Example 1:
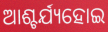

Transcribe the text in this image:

ଆଶ୍ଚର୍ଯ୍ୟହୋଇ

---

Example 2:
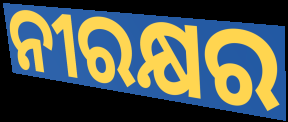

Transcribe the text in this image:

ନୀରକ୍ଷର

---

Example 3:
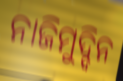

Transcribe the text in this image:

ନାଜିମୁଦ୍ଦିନ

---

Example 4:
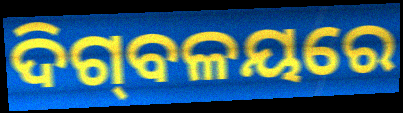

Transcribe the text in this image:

ଦିଗ୍‌ବଳୟରେ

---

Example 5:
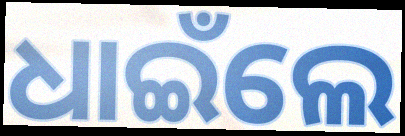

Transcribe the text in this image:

ଧାଇଁଲେ